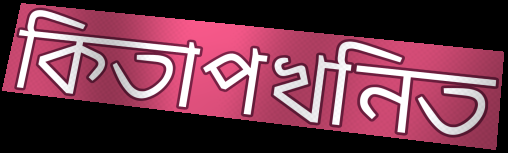
কিতাপখনিত